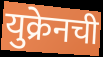
युक्रेनची